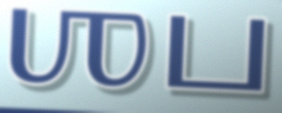
ஶப